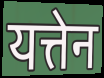
यत्तेन